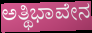
ಅತ್ಥಿಭಾವೇನ